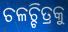
ଚଳଚ୍ଚିତ୍ରକୁ